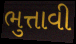
ભુત્તાવી